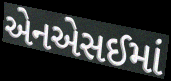
એનએસઈમાં